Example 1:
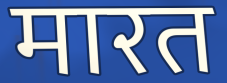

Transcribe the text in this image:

मारत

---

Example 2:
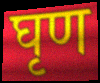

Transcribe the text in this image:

घृण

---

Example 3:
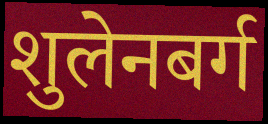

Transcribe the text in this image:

शुलेनबर्ग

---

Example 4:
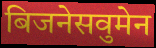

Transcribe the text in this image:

बिजनेसवुमेन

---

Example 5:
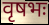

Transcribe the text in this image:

वृषभः